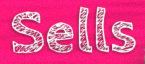
Sells